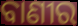
ବାଣୀର